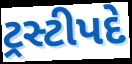
ટ્રસ્ટીપદે